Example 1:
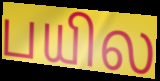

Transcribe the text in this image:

பயில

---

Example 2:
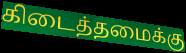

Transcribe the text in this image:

கிடைத்தமைக்கு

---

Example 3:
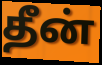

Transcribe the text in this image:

தீன்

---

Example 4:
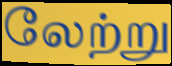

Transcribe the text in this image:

லேற்று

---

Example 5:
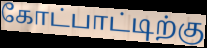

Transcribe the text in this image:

கோட்பாட்டிற்கு